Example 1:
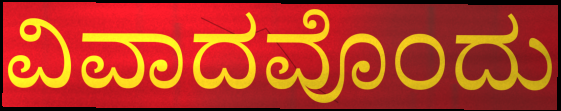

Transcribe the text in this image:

ವಿವಾದವೊಂದು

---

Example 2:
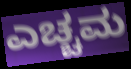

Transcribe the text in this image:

ಎಚ್ಚಮ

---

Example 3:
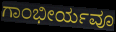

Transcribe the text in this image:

ಗಾಂಭೀರ್ಯವೂ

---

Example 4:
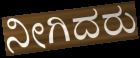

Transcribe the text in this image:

ನೀಗಿದರು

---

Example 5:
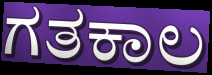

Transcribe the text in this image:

ಗತಕಾಲ